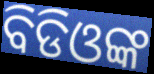
ବିଡିଓଙ୍କ